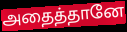
அதைத்தானே